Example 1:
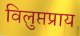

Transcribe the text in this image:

विलुप्तप्राय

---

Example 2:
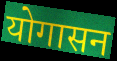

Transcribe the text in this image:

योगासन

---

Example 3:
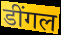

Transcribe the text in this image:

डींगल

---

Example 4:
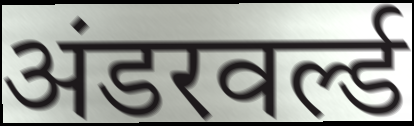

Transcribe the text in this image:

अंडरवर्ल्‍ड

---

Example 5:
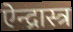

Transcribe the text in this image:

ऐन्द्रास्त्र